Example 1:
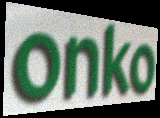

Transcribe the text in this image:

onko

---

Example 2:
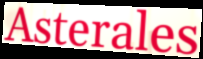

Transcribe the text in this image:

Asterales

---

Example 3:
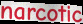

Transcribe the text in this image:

narcotic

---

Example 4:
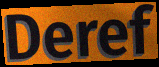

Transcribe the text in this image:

Deref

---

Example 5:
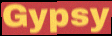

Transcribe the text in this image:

Gypsy